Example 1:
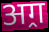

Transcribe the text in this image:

अ्रग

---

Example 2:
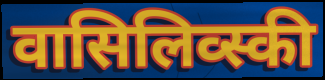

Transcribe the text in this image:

वासिलिव्स्की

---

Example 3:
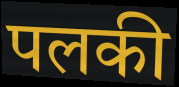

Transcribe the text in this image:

पलकी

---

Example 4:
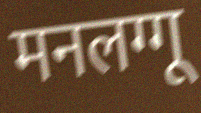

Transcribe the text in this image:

मनलग्गू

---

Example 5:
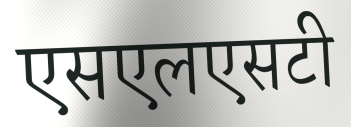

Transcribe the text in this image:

एसएलएसटी